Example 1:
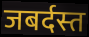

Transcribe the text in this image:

जबर्दस्त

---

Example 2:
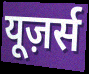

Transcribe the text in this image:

यूज़र्स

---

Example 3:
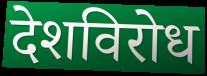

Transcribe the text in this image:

देशविरोध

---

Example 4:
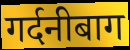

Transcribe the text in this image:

गर्दनीबाग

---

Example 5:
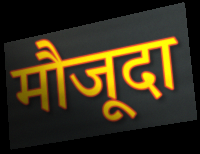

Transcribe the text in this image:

मौजूदा